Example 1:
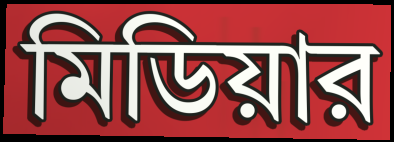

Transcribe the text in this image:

মিডিয়ার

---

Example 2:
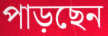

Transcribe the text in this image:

পাড়ছেন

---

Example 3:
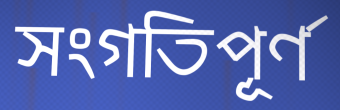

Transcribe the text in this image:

সংগতিপূর্ণ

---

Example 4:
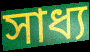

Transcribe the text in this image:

সাধ্য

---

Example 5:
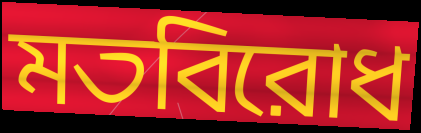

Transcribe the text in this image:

মতবিরোধ